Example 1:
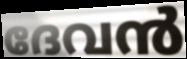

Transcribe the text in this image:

ദേവൻ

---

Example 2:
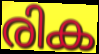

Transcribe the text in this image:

രിക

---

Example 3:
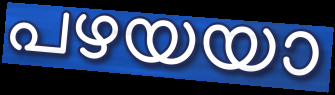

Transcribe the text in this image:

പഴയയാ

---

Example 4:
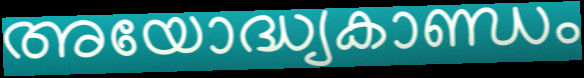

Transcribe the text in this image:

അയോദ്ധ്യകാണ്ഡം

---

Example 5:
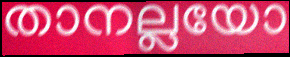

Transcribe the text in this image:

താനല്ലയോ